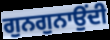
ਗੁਨਗੁਨਾਉਂਦੀ